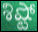
శిష్టో